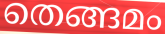
തെങ്ങമം